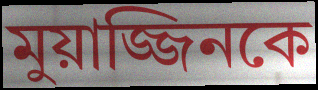
মুয়াজ্জিনকে